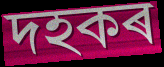
দহকৰ